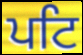
ਪਟਿ